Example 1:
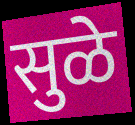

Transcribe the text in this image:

सुळे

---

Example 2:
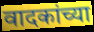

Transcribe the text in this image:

वादकांच्या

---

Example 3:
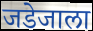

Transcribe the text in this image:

जडेजाला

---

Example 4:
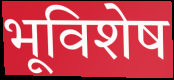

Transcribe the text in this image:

भूविशेष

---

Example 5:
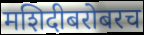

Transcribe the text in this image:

मशिदीबरोबरच